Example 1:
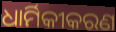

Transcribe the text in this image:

ଧାର୍ମିକୀକରଣ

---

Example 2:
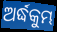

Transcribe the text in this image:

ଅର୍ଦ୍ଧକୁମ୍ଭ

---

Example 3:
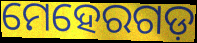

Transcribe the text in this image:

ମେହେରଗଡ଼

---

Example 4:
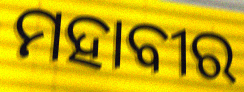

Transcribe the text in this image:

ମହାବୀର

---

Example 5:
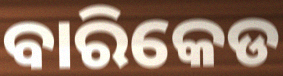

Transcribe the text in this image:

ବାରିକେଡ